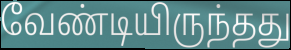
வேண்டியிருந்தது